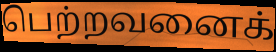
பெற்றவனைக்